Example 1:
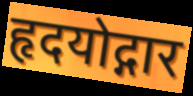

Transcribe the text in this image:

हृदयोद्गार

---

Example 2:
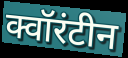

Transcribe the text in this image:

क्वॉरंटीन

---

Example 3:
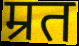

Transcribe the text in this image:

म्रत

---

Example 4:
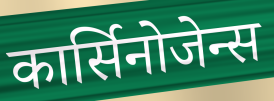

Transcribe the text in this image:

कार्सिनोजेन्स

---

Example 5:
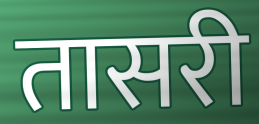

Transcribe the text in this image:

तासरी